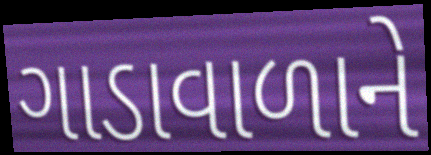
ગાડાવાળાને